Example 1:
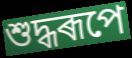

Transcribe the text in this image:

শুদ্ধৰূপে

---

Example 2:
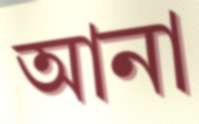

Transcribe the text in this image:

আনা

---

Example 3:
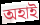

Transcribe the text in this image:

অহাই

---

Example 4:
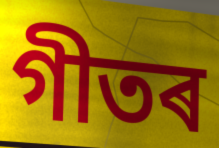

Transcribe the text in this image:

গীতৰ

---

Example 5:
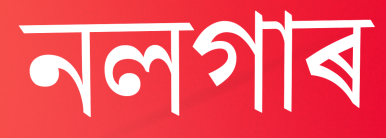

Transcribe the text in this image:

নলগাৰ